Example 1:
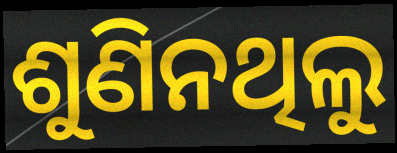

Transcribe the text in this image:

ଶୁଣିନଥିଲୁ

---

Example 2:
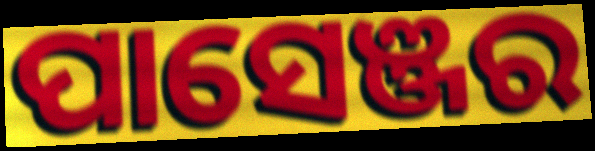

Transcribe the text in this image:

ପାସେଞ୍ଜର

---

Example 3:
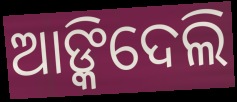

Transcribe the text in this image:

ଆଙ୍କିଦେଲି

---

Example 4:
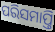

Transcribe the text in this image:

ପରିସମାପ୍ତି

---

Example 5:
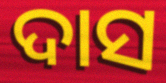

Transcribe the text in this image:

ଦାସ